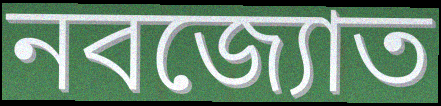
নবজ্যোত